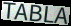
TABLA